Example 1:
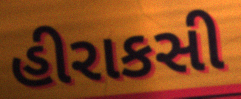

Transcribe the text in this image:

હીરાકસી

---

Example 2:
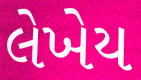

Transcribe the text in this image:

લેખેય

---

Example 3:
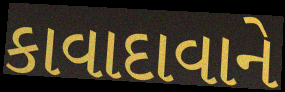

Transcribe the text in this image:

કાવાદાવાને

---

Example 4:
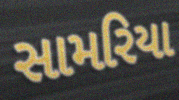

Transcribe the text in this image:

સામરિયા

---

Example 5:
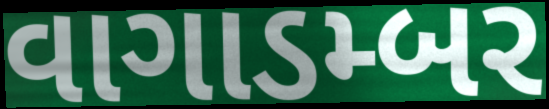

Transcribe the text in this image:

વાગાડમ્બર